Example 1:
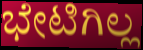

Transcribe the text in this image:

ಭೇಟಿಗಿಲ್ಲ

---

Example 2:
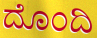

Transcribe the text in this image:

ದೊಂದಿ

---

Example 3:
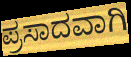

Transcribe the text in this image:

ಪ್ರಸಾದವಾಗಿ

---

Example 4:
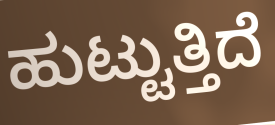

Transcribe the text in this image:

ಹುಟ್ಟುತ್ತಿದೆ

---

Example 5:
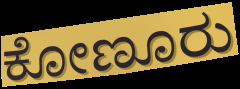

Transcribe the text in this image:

ಕೋಣೂರು